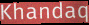
Khandaq